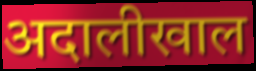
अदालीखाल